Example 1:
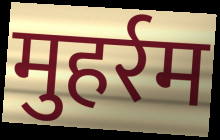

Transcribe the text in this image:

मुहर्रम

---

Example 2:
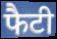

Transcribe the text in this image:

फैटी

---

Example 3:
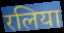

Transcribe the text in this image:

रलिया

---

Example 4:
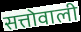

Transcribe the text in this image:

सत्तोवाली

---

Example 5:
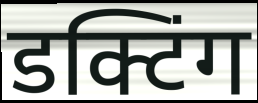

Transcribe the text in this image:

डक्टिंग